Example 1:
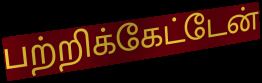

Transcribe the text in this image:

பற்றிக்கேட்டேன்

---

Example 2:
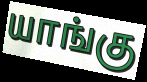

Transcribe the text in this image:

யாங்கு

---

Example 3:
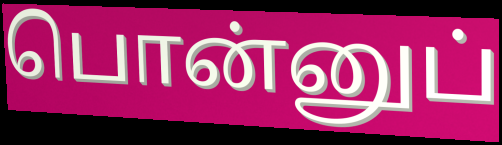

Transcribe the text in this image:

பொன்னுப்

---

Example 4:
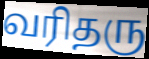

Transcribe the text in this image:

வரிதரு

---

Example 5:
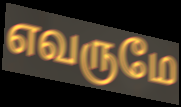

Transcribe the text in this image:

எவருமே